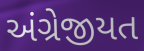
અંગ્રેજીયત